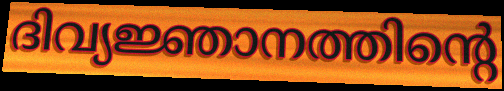
ദിവ്യജ്ഞാനത്തിന്റെ